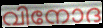
വിനോദ